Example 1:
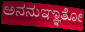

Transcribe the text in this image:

ಅನನುಞ್ಞಾತೋ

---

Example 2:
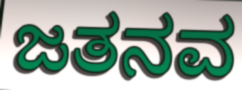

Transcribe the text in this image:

ಜತನವ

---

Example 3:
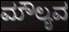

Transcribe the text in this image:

ಮೌಲ್ಯವ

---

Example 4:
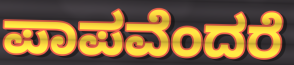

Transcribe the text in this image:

ಪಾಪವೆಂದರೆ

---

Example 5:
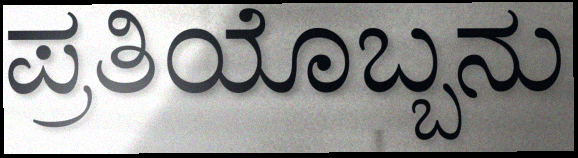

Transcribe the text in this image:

ಪ್ರತಿಯೊಬ್ಬನು